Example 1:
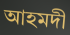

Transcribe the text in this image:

আহমদী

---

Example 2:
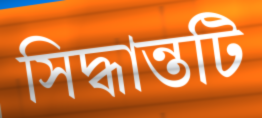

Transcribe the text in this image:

সিদ্ধান্তটি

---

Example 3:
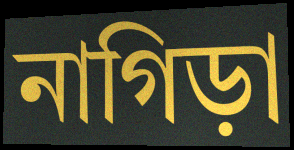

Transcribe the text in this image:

নাগিড়া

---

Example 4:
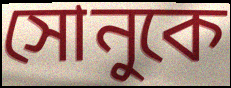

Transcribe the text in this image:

সোনুকে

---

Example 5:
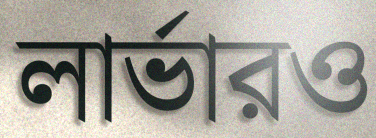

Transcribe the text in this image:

লার্ভারও